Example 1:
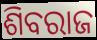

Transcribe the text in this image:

ଶିବରାଜ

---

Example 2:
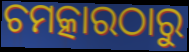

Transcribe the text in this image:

ଚମତ୍କାରଠାରୁ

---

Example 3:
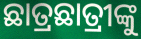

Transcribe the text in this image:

ଛାତ୍ରଛାତ୍ରୀଙ୍କୁ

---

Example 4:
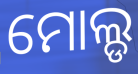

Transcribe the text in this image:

ମୋଲ୍ଡ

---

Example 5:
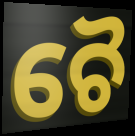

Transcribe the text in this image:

ଚୈ